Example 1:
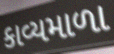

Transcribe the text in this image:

કાવ્યમાળા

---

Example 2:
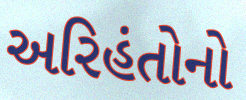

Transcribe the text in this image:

અરિહંતોનો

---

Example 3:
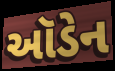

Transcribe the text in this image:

ઑડેન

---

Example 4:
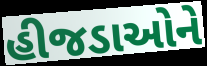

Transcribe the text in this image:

હીજડાઓને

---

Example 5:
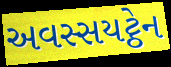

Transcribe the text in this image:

અવસ્સયટ્ઠેન